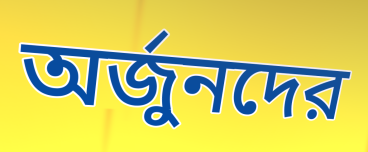
অর্জুনদের